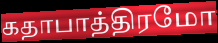
கதாபாத்திரமோ